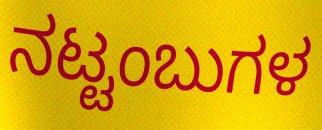
ನಟ್ಟಂಬುಗಳ